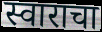
स्वाराचा